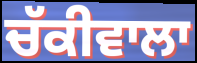
ਚੱਕੀਵਾਲਾ